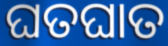
ଘତଘାତ